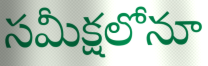
సమీక్షలోనూ